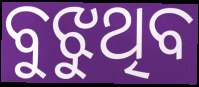
ବୁଝୁଥିବ